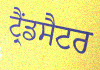
ਟ੍ਰੈਂਡਸੈਟਰ